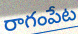
రాగంపేట